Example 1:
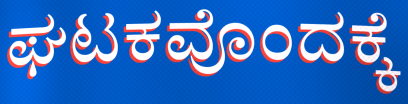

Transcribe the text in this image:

ಘಟಕವೊಂದಕ್ಕೆ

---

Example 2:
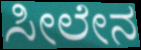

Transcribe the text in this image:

ಸೀಲೇನ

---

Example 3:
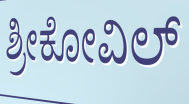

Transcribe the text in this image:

ಶ್ರೀಕೋವಿಲ್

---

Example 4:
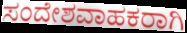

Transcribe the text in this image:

ಸಂದೇಶವಾಹಕರಾಗಿ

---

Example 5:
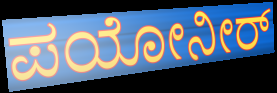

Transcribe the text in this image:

ಪಯೋನೀರ್